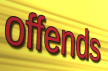
offends